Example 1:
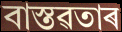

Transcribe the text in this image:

বাস্তৱতাৰ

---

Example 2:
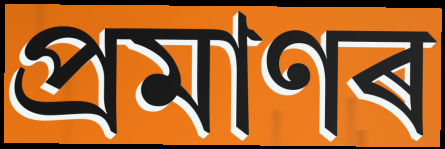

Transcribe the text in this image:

প্ৰমাণৰ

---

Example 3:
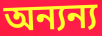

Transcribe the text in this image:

অন্যন্য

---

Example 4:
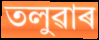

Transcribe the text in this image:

তলুৱাৰ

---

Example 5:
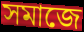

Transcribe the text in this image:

সমাজে